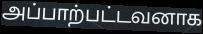
அப்பாற்பட்டவனாக